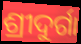
ଶ୍ରୀଦୁର୍ଗା